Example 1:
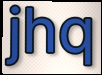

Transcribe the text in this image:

jhq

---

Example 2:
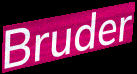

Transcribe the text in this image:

Bruder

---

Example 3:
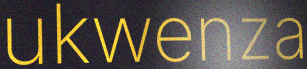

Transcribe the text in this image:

ukwenza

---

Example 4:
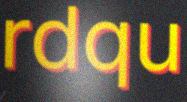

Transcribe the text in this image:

rdqu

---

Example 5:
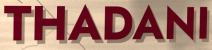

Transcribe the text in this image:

THADANI